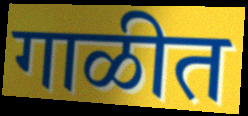
गाळीत